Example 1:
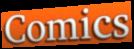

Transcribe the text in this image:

Comics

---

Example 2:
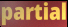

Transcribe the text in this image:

partial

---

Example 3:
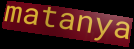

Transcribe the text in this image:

matanya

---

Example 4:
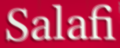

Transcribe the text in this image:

Salafi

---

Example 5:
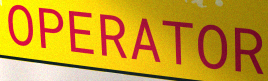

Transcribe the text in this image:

OPERATOR